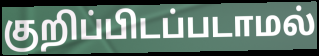
குறிப்பிடப்படாமல்